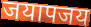
जयापजय